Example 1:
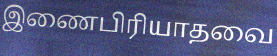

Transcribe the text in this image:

இணைபிரியாதவை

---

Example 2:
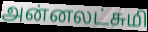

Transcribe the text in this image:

அன்னலட்சுமி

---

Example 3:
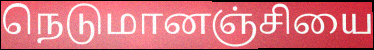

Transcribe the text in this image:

நெடுமானஞ்சியை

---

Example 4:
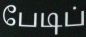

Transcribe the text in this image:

பேடிப்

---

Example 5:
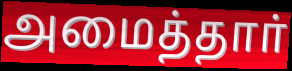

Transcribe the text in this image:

அமைத்தார்